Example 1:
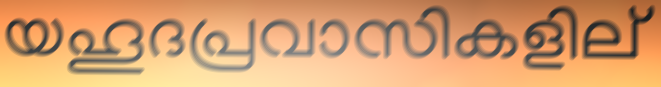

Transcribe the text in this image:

യഹൂദപ്രവാസികളില്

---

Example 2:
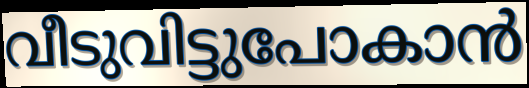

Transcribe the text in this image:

വീടുവിട്ടുപോകാൻ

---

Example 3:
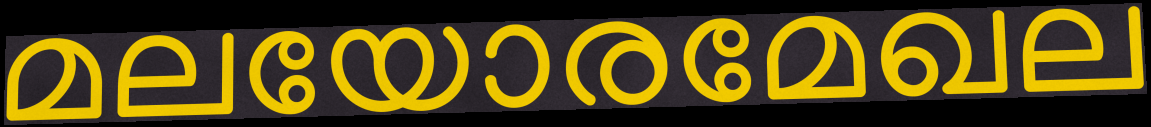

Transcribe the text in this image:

മലയോരമേഖല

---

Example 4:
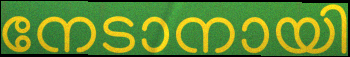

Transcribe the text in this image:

നേടാനായി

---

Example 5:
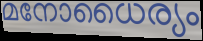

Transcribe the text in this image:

മനോധൈര്യം